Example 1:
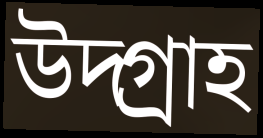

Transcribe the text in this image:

উদ্গ্রাহ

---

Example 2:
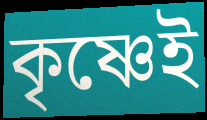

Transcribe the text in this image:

কৃষ্ণেই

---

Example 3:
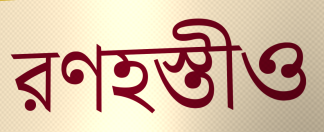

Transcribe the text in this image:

রণহস্তীও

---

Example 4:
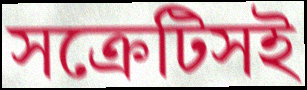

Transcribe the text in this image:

সক্রেটিসই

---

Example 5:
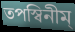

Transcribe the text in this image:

তপস্বিনীম্